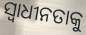
ସ୍ବାଧୀନତାକୁ